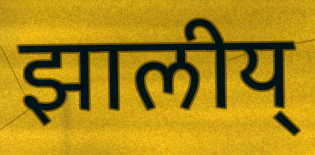
झालीय्